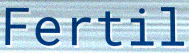
Fertil